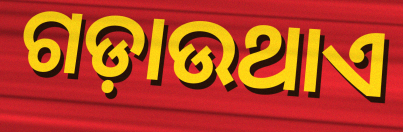
ଗଡ଼ାଉଥାଏ